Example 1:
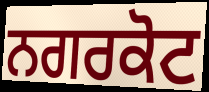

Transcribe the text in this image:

ਨਗਰਕੋਟ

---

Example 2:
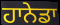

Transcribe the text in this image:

ਹਾਨੇਡਾ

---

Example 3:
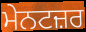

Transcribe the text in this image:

ਮੇਨਟਜ਼ਰ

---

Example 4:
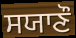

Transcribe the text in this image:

ਸਯਾਣੌ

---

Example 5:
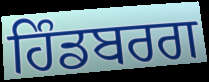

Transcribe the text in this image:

ਹਿੰਡਬਰਗ